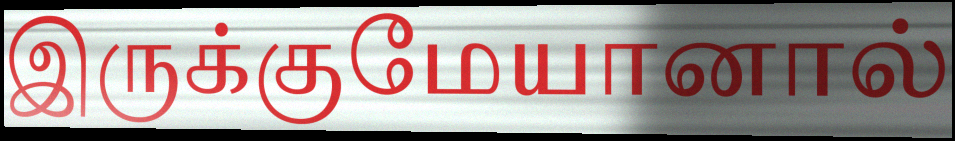
இருக்குமேயானால்